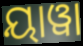
ୟାୱା